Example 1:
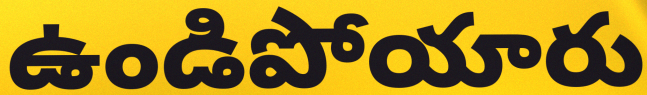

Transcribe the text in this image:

ఉండిపోయారు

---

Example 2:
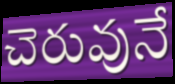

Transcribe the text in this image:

చెరువునే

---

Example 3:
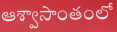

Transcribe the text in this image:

ఆశ్వాసాంతంలో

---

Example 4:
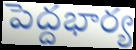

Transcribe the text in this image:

పెద్దభార్య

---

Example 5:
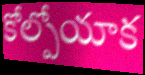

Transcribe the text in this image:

కోల్పోయాక